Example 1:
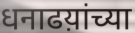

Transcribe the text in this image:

धनाढय़ांच्या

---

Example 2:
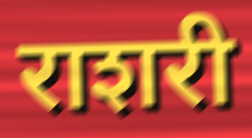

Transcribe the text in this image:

राशरी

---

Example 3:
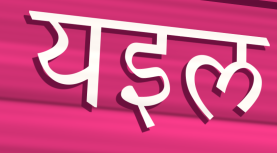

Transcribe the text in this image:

यइल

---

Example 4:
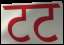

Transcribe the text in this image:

टट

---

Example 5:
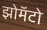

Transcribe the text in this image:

झोमॅटो